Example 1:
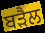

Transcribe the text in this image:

ਬੜੈਲ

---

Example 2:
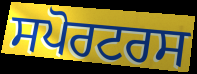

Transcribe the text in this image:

ਸਪੋਰਟਰਸ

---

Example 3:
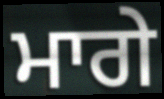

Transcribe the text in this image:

ਮਾਗੇ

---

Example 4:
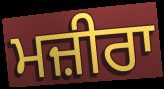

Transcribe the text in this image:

ਮਜ਼ੀਰਾ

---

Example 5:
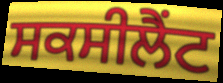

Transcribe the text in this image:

ਸਕਸੀਲੈਂਟ